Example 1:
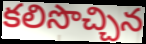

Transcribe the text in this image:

కలిసొచ్చిన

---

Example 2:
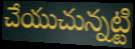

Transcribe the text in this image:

చేయుచున్నట్టి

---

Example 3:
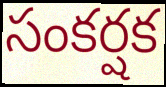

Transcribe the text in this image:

సంకర్షక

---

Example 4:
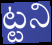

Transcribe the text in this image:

ట్టని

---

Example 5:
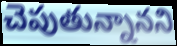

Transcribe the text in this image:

చెపుతున్నానని